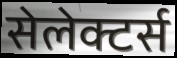
सेलेक्टर्स